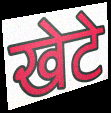
खेटे